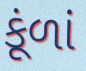
કૂંળાં